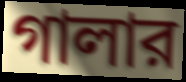
গালার